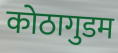
कोठागुडम